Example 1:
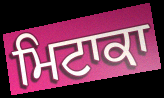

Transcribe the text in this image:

ਮਿਟਾਕਾ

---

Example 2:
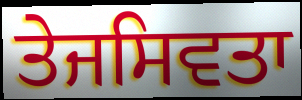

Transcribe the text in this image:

ਤੇਜਸਿਵਤਾ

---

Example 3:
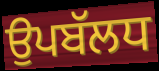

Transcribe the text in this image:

ਉਪਬੱਲਧ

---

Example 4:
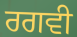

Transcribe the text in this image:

ਰਗਵੀ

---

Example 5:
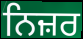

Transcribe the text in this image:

ਨਿਜ਼ਰ